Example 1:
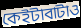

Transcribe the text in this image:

কেইটাবাটাও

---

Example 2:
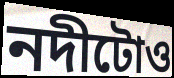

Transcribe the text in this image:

নদীটোও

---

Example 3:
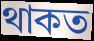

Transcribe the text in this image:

থাকত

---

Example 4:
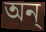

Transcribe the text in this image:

অন্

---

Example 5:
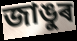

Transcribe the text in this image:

জাঙুৰ